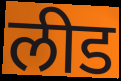
लीड